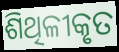
ଶିଥିଳୀକୃତ